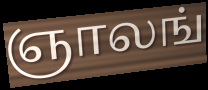
ஞாலங்